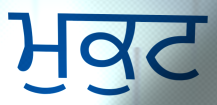
ਮੁਕੁਟ